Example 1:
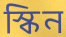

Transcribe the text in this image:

স্কিন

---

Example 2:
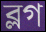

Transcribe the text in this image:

ব্লগ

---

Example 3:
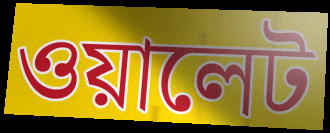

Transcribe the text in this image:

ওয়ালেট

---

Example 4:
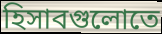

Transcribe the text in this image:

হিসাবগুলোতে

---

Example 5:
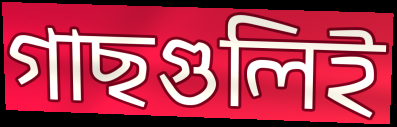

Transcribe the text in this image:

গাছগুলিই